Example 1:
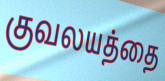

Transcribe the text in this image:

குவலயத்தை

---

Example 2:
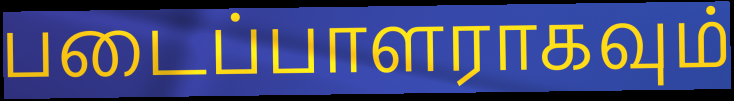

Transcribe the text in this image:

படைப்பாளராகவும்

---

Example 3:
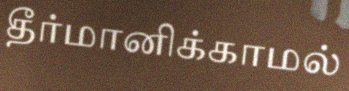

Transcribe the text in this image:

தீர்மானிக்காமல்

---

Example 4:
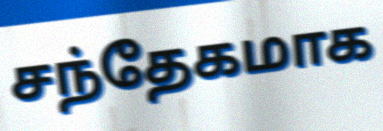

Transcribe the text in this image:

சந்தேகமாக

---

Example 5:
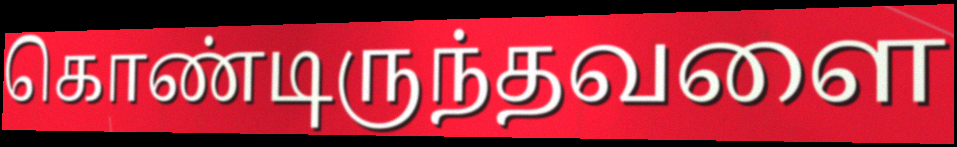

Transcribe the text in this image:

கொண்டிருந்தவளை